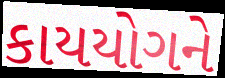
કાયયોગને